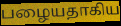
பழையதாகிய